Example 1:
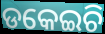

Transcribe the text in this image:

ଡକେଇଚି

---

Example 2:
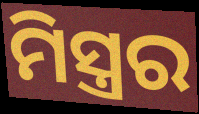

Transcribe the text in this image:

ମିସ୍ତ୍ରର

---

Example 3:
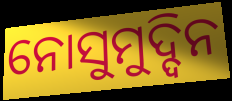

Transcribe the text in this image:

ନୋସୁମୁଦ୍ଦିନ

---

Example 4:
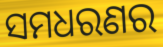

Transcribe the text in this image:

ସମଧରଣର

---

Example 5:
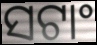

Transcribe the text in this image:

ସଟାଂ